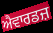
ਐਵਾਰਡਜ਼